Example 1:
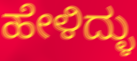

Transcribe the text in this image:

ಹೇಳಿದ್ಳು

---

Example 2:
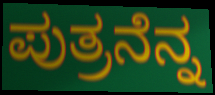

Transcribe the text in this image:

ಪುತ್ರನೆನ್ನ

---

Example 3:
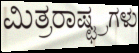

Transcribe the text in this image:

ಮಿತ್ರರಾಷ್ಟ್ರಗಳು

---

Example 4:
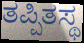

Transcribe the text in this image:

ತಪ್ಪಿತಸ್ಥ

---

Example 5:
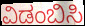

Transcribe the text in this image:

ವಿಡಂಬಿಸಿ